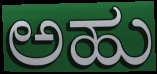
ಅಹು